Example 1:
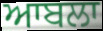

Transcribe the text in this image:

ਆਬਲਾ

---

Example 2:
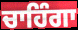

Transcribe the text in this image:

ਚਾਹਿੰਗਾ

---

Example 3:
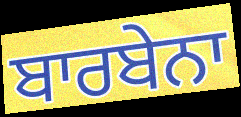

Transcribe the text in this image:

ਬਾਰਬੇਨਾ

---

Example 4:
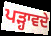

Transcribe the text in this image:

ਪੜ੍ਹਾਵਦੇ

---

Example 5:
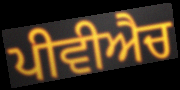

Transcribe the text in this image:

ਪੀਵੀਐਚ